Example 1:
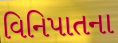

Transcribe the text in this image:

વિનિપાતના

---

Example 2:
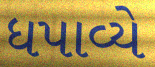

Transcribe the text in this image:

ધપાવ્યે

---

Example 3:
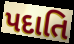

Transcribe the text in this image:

પદાતિ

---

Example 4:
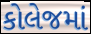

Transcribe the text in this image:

કોલેજમાં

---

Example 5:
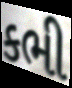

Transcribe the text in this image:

કભી